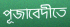
পূজাবেদীতে